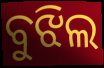
ବୁଝିଲ